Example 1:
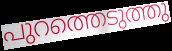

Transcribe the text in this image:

പുറത്തെടുത്തു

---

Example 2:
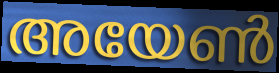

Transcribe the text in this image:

അയേൺ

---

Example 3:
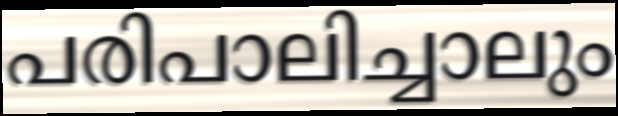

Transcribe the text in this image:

പരിപാലിച്ചാലും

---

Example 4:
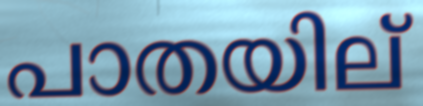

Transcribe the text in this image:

പാതയില്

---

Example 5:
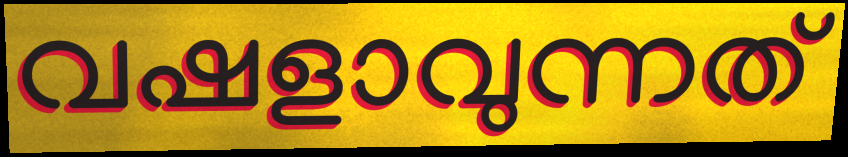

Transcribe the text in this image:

വഷളാവുന്നത്